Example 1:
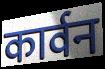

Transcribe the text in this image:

कार्वन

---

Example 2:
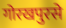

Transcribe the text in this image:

गोरखपुरसे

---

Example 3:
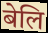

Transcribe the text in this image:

बेलि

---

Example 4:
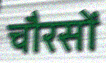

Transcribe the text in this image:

चौरसों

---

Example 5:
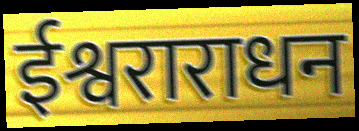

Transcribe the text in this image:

ईश्वराराधन